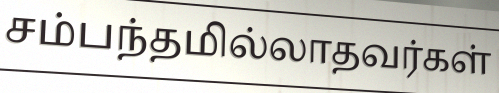
சம்பந்தமில்லாதவர்கள்